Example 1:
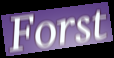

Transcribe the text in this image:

Forst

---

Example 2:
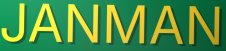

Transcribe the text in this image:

JANMAN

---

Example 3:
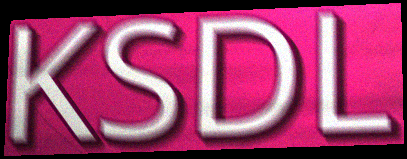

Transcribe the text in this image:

KSDL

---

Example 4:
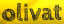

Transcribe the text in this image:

olivat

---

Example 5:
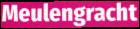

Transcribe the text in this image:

Meulengracht